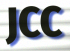
JCC